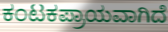
ಕಂಟಕಪ್ರಾಯವಾಗಿದೆ